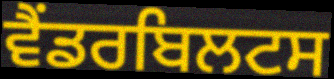
ਵੈਂਡਰਬਿਲਟਸ